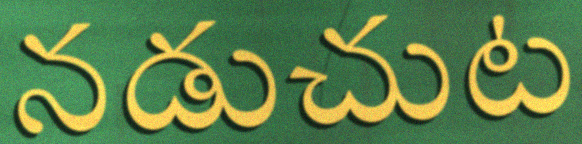
నడుచుట